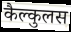
कैल्कुलस